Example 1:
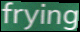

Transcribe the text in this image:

frying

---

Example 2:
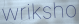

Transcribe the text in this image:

wriksho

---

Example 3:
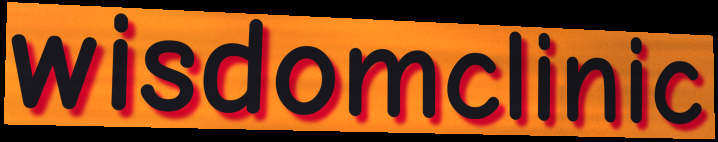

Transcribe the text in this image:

wisdomclinic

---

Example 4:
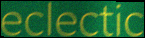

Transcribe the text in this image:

eclectic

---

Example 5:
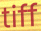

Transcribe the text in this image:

tiff